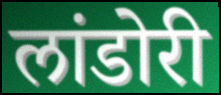
लांडोरी